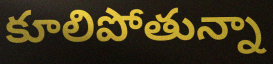
కూలిపోతున్నా